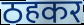
ठहकर